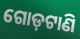
ଗୋଡ଼ଟାଣି